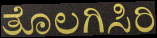
ತೊಲಗಿಸಿರಿ